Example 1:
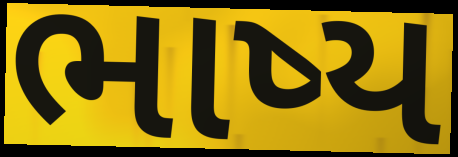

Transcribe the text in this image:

ભાષ્ય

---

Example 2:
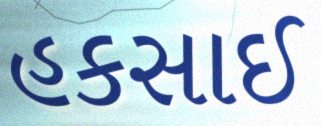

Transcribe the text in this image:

હકસાઈ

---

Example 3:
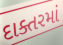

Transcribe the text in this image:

દાક્તરમાં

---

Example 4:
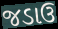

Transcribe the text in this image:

જડાઉ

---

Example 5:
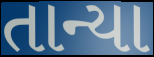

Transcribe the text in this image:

તાન્યા